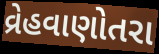
વ્રેહવાણોતરા